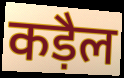
कड़ैल